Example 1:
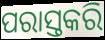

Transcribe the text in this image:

ପରାସ୍ତକରି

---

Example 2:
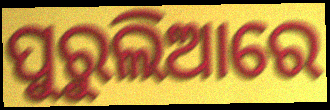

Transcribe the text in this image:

ପୁରୁଲିଆରେ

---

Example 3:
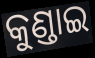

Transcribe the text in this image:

କୁଣ୍ଡାଇ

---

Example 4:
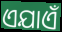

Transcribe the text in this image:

ଏଯାଏଁ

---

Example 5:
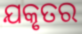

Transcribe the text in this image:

ଯକୃତର